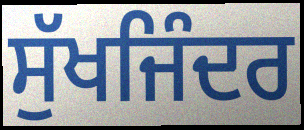
ਸੁੱਖਜਿੰਦਰ